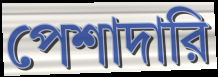
পেশাদারি